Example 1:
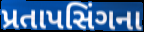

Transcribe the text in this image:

પ્રતાપસિંગના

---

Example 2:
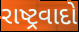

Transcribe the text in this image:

રાષ્ટ્રવાદો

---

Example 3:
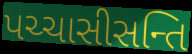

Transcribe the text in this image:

પચ્ચાસીસન્તિ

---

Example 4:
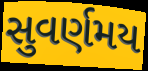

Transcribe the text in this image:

સુવર્ણમય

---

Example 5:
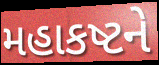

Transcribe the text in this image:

મહાકષ્ટને